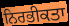
ਨਿਰਭੀਕਤਾ